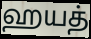
ஹயத்